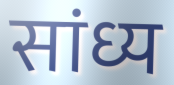
सांध्य